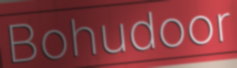
Bohudoor